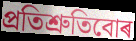
প্ৰতিশ্ৰুতিবোৰ